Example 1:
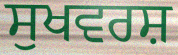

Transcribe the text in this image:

ਸੁਖਵਰਸ਼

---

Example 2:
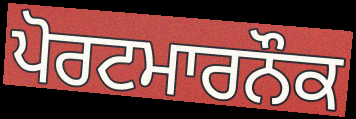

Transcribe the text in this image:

ਪੋਰਟਮਾਰਨੌਕ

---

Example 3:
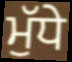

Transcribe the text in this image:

ਮੁੱਧੇ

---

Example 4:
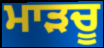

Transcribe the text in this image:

ਮਾੜਚੂ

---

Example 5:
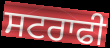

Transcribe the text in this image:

ਸਟਰਾਫੀ